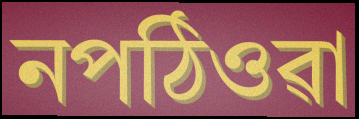
নপঠিওৱা